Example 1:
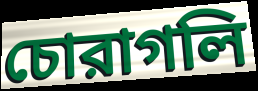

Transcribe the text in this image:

চোরাগলি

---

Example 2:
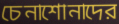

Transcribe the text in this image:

চেনাশোনাদের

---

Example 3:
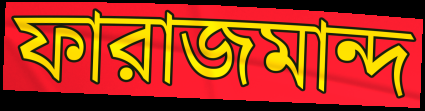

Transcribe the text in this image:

ফারাজমান্দ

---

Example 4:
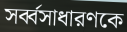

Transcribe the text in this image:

সর্ব্বসাধারণকে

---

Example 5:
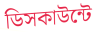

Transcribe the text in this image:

ডিসকাউন্টে